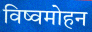
विष्वमोहन